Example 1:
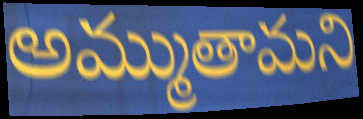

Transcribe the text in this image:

అమ్ముతామని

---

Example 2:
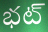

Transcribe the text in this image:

భట్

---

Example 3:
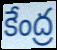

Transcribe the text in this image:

కేంద్ర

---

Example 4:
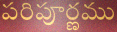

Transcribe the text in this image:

పరిపూర్ణము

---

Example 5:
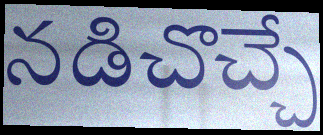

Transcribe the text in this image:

నడిచొచ్చే